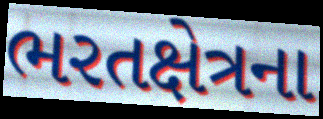
ભરતક્ષેત્રના